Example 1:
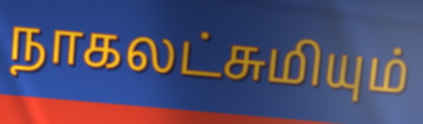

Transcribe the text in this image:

நாகலட்சுமியும்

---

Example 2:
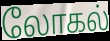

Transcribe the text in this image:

லோகல்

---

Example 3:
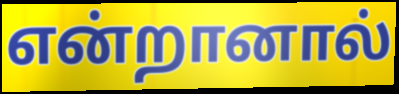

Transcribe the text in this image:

என்றானால்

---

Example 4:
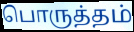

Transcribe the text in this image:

பொருத்தம்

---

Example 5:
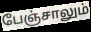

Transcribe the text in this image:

பேஞ்சாலும்